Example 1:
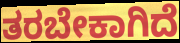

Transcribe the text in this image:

ತರಬೇಕಾಗಿದೆ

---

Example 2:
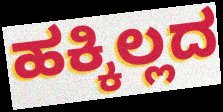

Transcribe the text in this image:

ಹಕ್ಕಿಲ್ಲದ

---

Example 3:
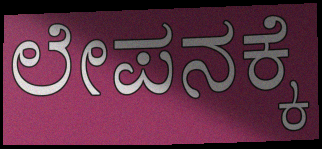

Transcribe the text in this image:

ಲೇಪನಕ್ಕೆ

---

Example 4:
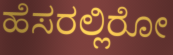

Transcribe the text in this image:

ಹೆಸರಲ್ಲಿರೋ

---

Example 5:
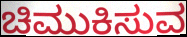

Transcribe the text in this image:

ಚಿಮುಕಿಸುವ